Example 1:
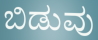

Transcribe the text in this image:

ಬಿಡುವು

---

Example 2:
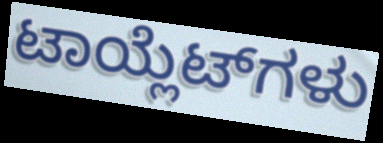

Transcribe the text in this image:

ಟಾಯ್ಲೆಟ್‌ಗಳು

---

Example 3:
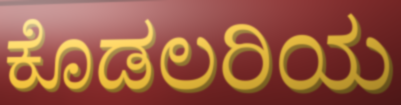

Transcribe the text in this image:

ಕೊಡಲರಿಯ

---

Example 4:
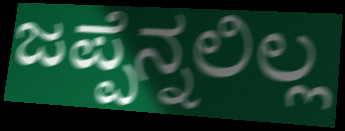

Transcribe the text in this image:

ಜಪ್ಪೆನ್ನಲಿಲ್ಲ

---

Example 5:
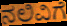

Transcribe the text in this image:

ನಲಿವಿಗೆ